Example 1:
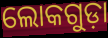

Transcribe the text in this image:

ଲୋକଗୁଡ଼ା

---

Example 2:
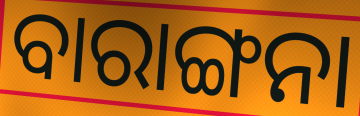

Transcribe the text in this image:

ବାରାଙ୍ଗନା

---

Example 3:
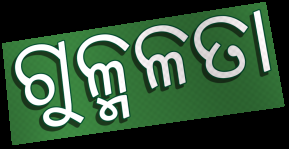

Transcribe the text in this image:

ଗୁଳ୍ମଳତା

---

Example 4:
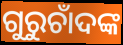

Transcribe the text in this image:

ଗୁରୁଚାଁଦଙ୍କ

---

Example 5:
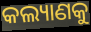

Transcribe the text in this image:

କଲ୍ୟାଣକୁ